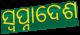
ସ୍ଵପ୍ନାଦେଶ